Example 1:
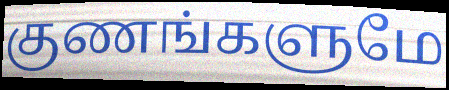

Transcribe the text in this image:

குணங்களுமே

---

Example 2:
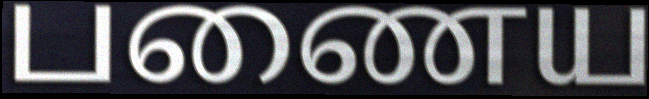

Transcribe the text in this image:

பணைய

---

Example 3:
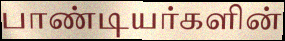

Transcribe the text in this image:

பாண்டியர்களின்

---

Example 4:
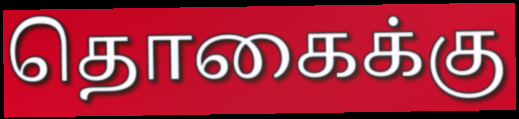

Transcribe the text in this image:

தொகைக்கு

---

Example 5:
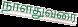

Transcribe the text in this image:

நாளதுவரை